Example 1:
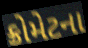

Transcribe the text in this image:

ક્રોમેટના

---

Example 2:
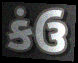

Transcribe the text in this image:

કંઉ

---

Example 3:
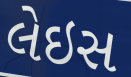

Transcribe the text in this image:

લેઇસ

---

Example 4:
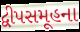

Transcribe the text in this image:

દ્વીપસમૂહના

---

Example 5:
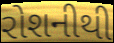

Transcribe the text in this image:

રોશનીથી